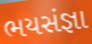
ભયસંજ્ઞા